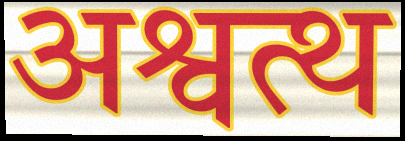
अश्वत्थ